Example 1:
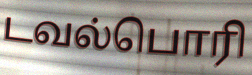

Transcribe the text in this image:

டவல்பொரி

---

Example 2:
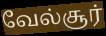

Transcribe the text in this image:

வேல்சூர்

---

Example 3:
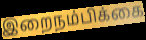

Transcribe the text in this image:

இறைநம்பிக்கை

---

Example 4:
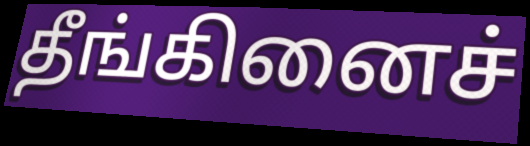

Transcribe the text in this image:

தீங்கினைச்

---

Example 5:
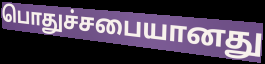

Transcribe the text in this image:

பொதுச்சபையானது